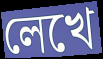
লেখে